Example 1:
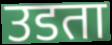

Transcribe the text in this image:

उडता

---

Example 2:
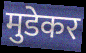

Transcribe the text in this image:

मुडेकर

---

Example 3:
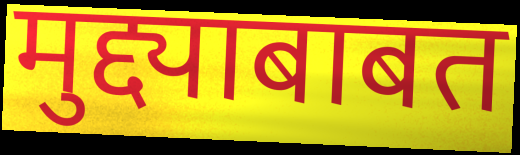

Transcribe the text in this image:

मुद्द्याबाबत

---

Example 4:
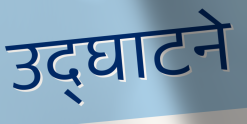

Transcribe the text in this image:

उद्घाटने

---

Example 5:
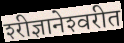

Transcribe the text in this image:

श्रीज्ञानेश्वरीत